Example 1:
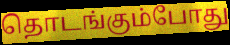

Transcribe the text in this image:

தொடங்கும்போது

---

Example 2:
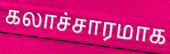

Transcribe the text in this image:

கலாச்சாரமாக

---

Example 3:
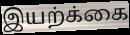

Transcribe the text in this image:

இயற்க்கை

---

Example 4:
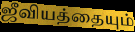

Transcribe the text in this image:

ஜீவியத்தையும்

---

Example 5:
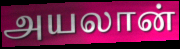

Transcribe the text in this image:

அயலான்